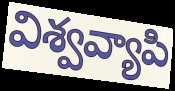
విశ్వవ్యాపి